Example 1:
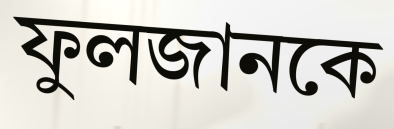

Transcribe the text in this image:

ফুলজানকে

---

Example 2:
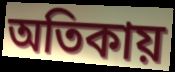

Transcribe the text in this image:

অতিকায়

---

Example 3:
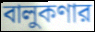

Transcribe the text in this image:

বালুকণার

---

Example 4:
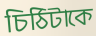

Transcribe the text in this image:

চিঠিটাকে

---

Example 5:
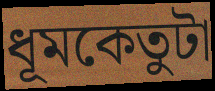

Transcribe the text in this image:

ধূমকেতুটা